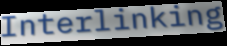
Interlinking